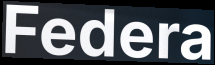
Federa